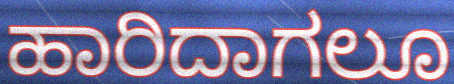
ಹಾರಿದಾಗಲೂ